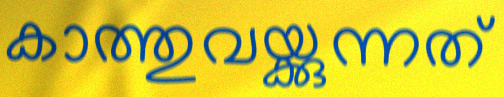
കാത്തുവയ്ക്കുന്നത്